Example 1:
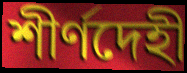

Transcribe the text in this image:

শীর্ণদেহী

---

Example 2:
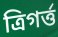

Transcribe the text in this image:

ত্রিগর্ত্ত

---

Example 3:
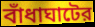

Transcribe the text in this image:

বাঁধাঘাটের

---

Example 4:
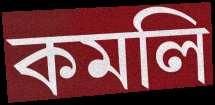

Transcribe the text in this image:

কমলি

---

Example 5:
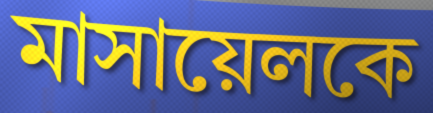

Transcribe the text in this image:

মাসায়েলকে